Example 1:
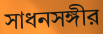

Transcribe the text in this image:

সাধনসঙ্গীর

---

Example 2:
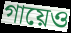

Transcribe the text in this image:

গায়েও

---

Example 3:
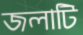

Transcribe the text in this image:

জলাটি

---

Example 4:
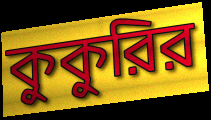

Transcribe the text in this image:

কুকুরির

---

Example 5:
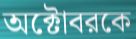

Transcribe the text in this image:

অক্টোবরকে